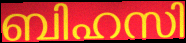
ബിഹസി